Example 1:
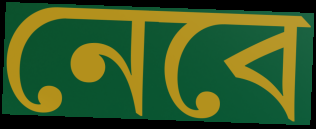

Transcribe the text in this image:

নেবে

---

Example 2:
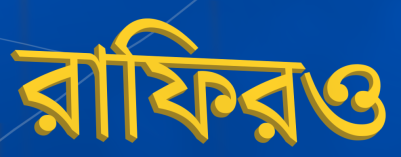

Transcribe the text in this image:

রাফিরও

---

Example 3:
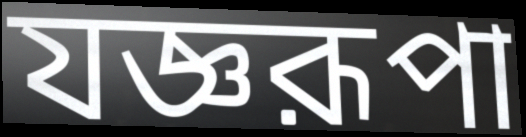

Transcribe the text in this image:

যজ্ঞরূপা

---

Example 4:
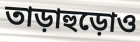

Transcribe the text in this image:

তাড়াহুড়োও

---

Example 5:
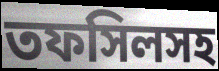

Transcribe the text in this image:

তফসিলসহ